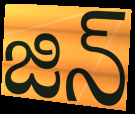
జిన్